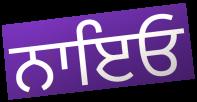
ਨਾਇਓ